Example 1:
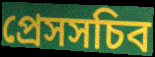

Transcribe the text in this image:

প্রেসসচিব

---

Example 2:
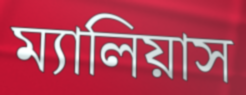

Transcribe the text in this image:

ম্যালিয়াস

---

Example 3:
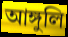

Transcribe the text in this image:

আঙ্গুলি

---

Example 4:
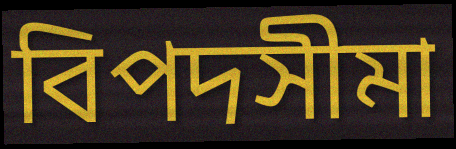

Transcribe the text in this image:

বিপদসীমা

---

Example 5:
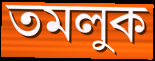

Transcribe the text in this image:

তমলুক